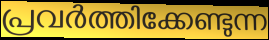
പ്രവർത്തിക്കേണ്ടുന്ന